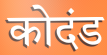
कोदंड